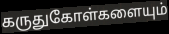
கருதுகோள்களையும்